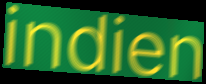
indien